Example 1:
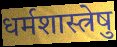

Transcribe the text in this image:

धर्मशास्त्रेषु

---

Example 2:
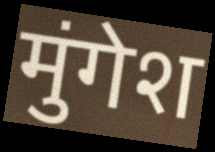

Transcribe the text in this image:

मुंगेश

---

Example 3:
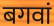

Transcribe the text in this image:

बगवां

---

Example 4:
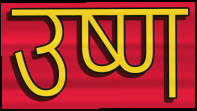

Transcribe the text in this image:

उष्ण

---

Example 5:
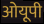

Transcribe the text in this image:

ओयूपी